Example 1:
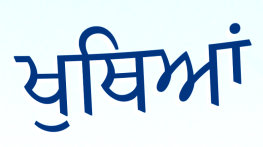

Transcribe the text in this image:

ਖੁਥਿਆਂ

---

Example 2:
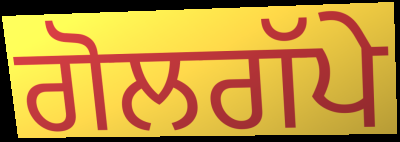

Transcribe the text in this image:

ਗੋਲਗੱਪੇ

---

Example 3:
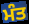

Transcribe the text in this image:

ਮੰਤ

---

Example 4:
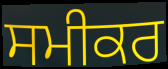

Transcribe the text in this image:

ਸਮੀਕਰ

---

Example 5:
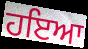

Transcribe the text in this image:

ਹਇਆ